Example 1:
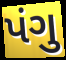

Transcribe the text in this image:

પંગુ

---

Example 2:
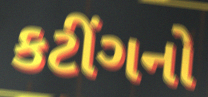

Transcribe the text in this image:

કટીંગનો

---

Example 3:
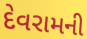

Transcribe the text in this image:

દેવરામની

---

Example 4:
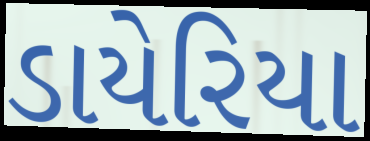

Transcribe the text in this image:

ડાયેરિયા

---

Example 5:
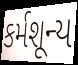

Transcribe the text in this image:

કર્મશૂન્ય